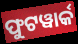
ଫୁଟୱାର୍କ